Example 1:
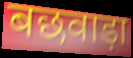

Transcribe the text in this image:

बछवाड़ा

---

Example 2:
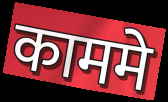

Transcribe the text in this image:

काममे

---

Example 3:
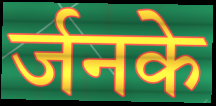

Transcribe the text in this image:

र्जनके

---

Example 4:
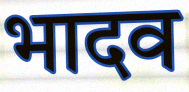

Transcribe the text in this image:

भादव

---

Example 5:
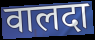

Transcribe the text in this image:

वालदा